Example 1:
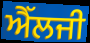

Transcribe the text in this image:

ਐੱਲਜੀ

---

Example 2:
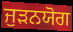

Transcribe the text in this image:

ਜੁੜਨਯੋਗ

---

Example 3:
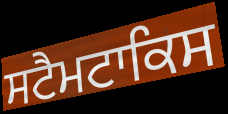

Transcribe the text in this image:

ਸਟੈਮਟਾਕਿਸ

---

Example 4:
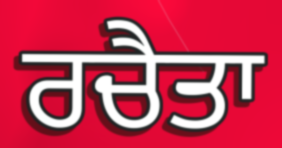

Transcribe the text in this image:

ਰਚੈਤਾ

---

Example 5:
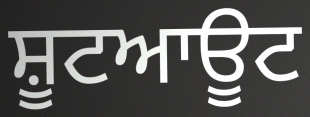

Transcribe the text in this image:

ਸ਼ੂਟਆਊਟ